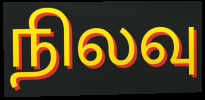
நிலவு